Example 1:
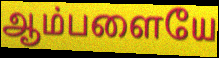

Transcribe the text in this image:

ஆம்பளையே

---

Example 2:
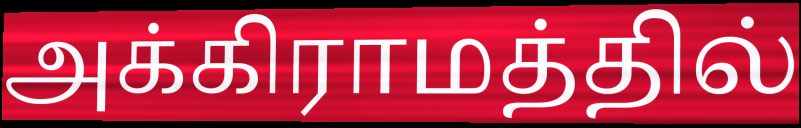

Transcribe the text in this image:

அக்கிராமத்தில்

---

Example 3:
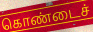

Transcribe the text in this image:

கொண்டைச்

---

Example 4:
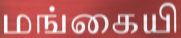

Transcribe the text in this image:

மங்கையி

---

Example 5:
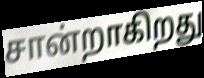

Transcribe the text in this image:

சான்றாகிறது